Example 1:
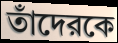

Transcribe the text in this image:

তাঁদেরকে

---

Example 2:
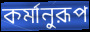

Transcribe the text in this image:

কর্মানুরূপ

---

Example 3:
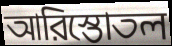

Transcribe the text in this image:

আরিস্তোতল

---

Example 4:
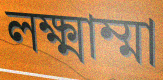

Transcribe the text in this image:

লক্ষ্মাম্মা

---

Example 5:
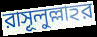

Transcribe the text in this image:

রাসূলুল্লাহর